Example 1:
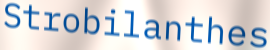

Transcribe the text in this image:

Strobilanthes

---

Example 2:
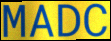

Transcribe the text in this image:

MADC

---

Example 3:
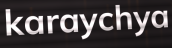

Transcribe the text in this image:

karaychya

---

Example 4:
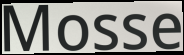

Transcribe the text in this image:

Mosse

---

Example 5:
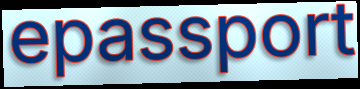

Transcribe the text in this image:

epassport